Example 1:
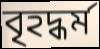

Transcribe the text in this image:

বৃহদ্ধৰ্ম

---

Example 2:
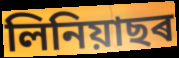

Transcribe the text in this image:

লিনিয়াছৰ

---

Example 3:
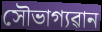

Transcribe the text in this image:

সৌভাগ্যৱান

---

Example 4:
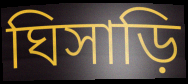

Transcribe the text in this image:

ঘিসাড়ি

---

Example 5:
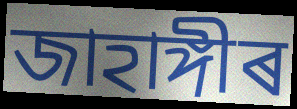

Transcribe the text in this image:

জাহাঙ্গীৰ